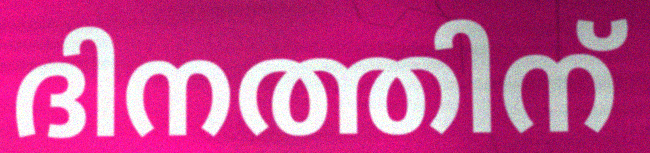
ദിനത്തിന്